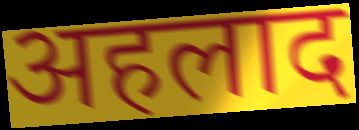
अहलाद